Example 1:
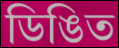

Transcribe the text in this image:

ডিঙিত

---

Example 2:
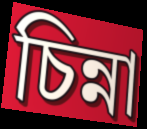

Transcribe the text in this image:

চিন্না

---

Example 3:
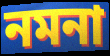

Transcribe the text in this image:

নমনা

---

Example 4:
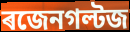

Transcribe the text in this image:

ৰজেনগল্টজ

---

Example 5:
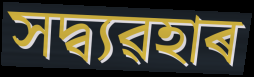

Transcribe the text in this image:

সদ্ব্যৱহাৰ